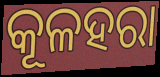
କୂଳହରା